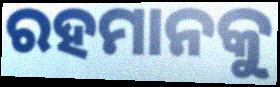
ରହମାନକୁ